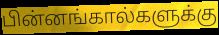
பின்னங்கால்களுக்கு